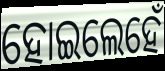
ହୋଇଲେହେଁ